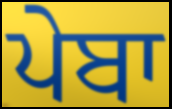
ਪੇਬਾ